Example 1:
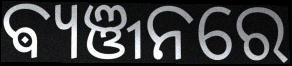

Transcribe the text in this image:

ଵ୍ୟଞ୍ଜନରେ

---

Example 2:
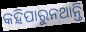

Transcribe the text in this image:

କହିପାରୁନଥାନ୍ତି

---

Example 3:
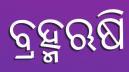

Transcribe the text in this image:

ବ୍ରହ୍ମଋଷି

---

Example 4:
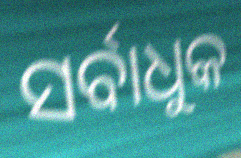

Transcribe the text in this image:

ସର୍ବାଧୁକ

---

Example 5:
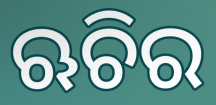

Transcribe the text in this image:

ଋଚିର